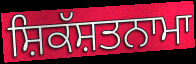
ਸ਼ਿਕੱਸ਼ਤਨਾਮਾ